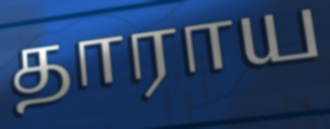
தாராய